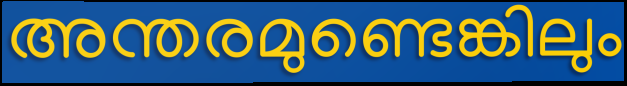
അന്തരമുണ്ടെങ്കിലും